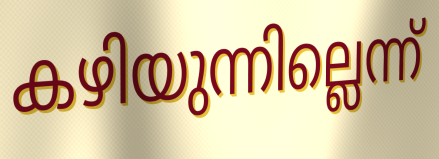
കഴിയുന്നില്ലെന്ന്